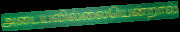
அடையவில்லையென்றால்